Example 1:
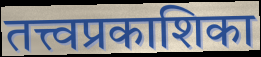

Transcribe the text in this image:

तत्त्वप्रकाशिका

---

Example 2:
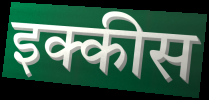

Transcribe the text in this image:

इक्‍कीस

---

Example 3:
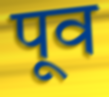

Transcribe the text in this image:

पूव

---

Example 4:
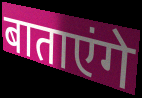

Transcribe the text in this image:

बाताएंगे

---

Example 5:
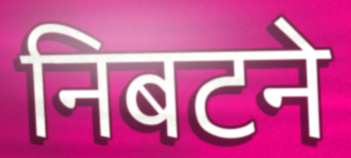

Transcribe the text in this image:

निबटने